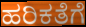
ಹರಿಕತೆಗೆ